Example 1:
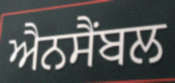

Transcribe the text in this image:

ਐਨਸੈਂਬਲ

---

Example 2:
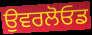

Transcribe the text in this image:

ਉਵਰਲੋਓਡ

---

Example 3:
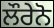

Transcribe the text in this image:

ਲੌਰੇਨੋ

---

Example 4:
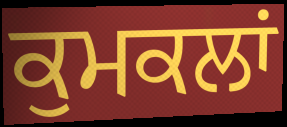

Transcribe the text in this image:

ਕੁਮਕਲਾਂ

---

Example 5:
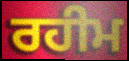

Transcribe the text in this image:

ਰਹੀਮ